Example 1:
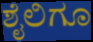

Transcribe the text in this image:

ಶೈಲಿಗೂ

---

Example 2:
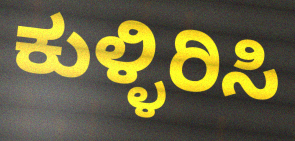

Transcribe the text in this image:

ಕುಳ್ಳಿರಿಸಿ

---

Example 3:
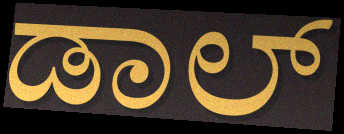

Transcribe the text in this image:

ಡಾಲ್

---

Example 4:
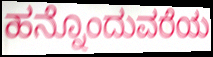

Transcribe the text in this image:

ಹನ್ನೊಂದುವರೆಯ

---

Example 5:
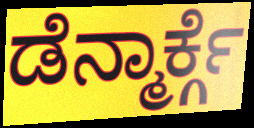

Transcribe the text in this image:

ಡೆನ್ಮಾರ್ಕ್ಗೆ